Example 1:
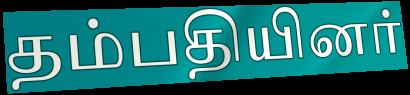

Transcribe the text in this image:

தம்பதியினர்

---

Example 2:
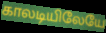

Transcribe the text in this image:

காலடியிலேயே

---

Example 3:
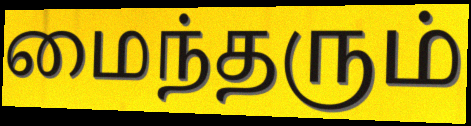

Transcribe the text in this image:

மைந்தரும்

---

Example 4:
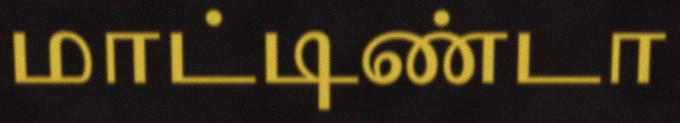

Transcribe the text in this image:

மாட்டிண்டா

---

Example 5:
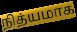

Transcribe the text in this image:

நித்யமாக